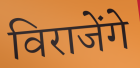
विराजेंगे